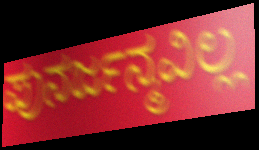
ಪುನರ್ಜನ್ಮವಿಲ್ಲ